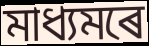
মাধ্যমৰে